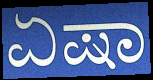
ಏಷಾ